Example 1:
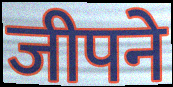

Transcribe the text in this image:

जीपने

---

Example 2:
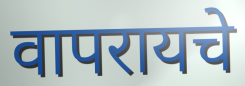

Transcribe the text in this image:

वापरायचे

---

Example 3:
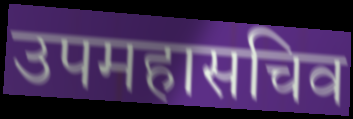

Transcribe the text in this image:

उपमहासचिव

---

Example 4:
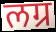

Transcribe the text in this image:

लग्र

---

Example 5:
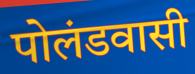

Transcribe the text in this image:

पोलंडवासी